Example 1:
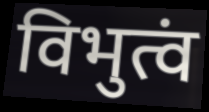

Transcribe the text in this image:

विभुत्वं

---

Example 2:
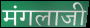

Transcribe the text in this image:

मंगलाजी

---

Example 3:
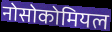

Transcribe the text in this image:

नोसोकोमियल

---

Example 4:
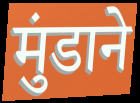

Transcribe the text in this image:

मुंडाने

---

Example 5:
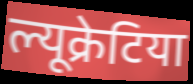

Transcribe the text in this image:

ल्यूक्रेटिया